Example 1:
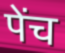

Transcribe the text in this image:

पेंच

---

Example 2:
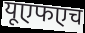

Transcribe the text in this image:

यूएफएच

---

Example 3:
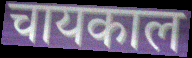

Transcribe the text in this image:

चायकाल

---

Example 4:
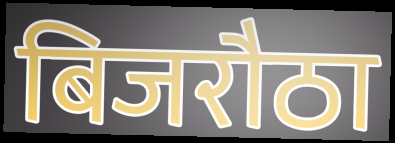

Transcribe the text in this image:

बिजरौठा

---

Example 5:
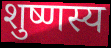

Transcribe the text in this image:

शुष्णस्य